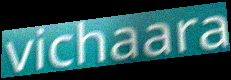
vichaara